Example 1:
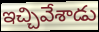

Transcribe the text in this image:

ఇచ్చివేశాడు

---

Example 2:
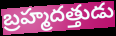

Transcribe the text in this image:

బ్రహ్మదత్తుడు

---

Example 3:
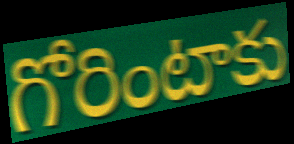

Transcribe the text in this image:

గోరింటాకు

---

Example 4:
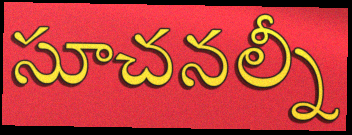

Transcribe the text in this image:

సూచనల్నీ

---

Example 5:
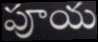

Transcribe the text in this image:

పూయ